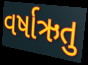
વર્ષાઋતુ